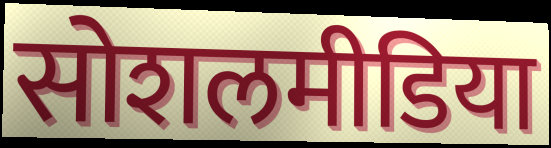
सोशलमीडिया